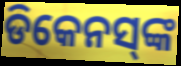
ଡିକେନସ୍‌ଙ୍କ